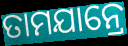
ତାମଯାନ୍ରେ